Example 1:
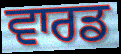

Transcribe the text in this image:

ਵਾਰਡ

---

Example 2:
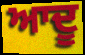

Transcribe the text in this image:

ਆਦੂ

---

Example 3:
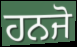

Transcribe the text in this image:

ਹਨਜੋ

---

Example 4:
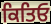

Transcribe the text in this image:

ਕਿਤਿਓ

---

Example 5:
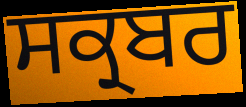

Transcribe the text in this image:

ਸਕ੍ਰਬਰ